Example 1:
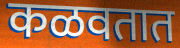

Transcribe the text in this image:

कळवतात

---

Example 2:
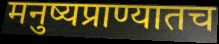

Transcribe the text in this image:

मनुष्यप्राण्यातच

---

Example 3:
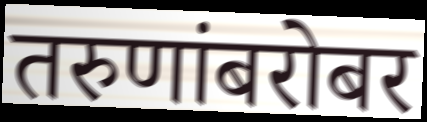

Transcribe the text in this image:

तरुणांबरोबर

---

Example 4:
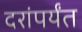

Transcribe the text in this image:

दरांपर्यंत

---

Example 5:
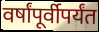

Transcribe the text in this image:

वर्षांपूर्वीपर्यंत